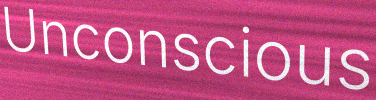
Unconscious